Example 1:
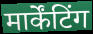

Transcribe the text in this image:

मार्केंटिंग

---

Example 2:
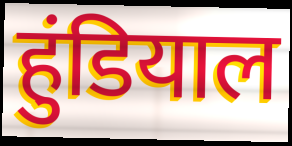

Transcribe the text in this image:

हुंडियाल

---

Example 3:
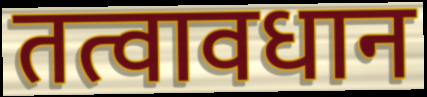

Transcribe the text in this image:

तत्वावधान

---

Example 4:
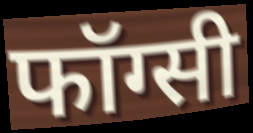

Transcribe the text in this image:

फॉग्सी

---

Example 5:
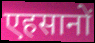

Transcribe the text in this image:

एहसानों